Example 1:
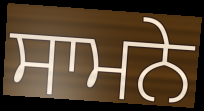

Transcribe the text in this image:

ਸਾਮਨੇ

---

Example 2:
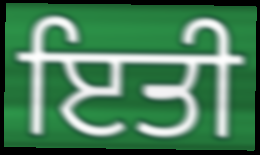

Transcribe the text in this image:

ਇਤੀ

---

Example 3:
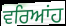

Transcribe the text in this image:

ਵਰਿਆਂਹ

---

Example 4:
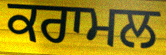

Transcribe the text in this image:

ਕਰਾਮਲ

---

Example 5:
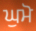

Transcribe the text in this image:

ਘੁਮੋ